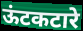
ऊंटकटारे